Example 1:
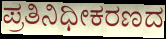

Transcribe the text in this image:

ಪ್ರತಿನಿಧೀಕರಣದ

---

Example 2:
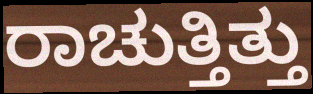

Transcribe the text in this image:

ರಾಚುತ್ತಿತ್ತು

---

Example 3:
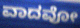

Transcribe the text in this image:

ವಾದವೋ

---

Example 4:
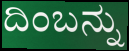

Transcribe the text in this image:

ದಿಂಬನ್ನು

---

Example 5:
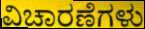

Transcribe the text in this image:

ವಿಚಾರಣೆಗಳು